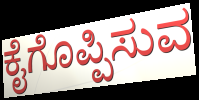
ಕೈಗೊಪ್ಪಿಸುವ